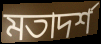
মতাদর্শ